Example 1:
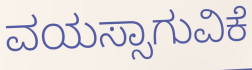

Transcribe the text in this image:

ವಯಸ್ಸಾಗುವಿಕೆ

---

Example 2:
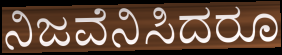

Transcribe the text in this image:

ನಿಜವೆನಿಸಿದರೂ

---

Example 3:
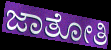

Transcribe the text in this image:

ಜಾತೋತಿ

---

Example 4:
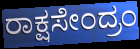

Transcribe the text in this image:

ರಾಕ್ಷಸೇಂದ್ರಂ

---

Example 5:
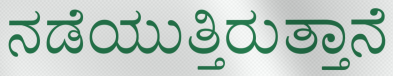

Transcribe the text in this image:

ನಡೆಯುತ್ತಿರುತ್ತಾನೆ